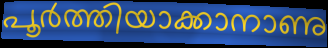
പൂർത്തിയാക്കാനാണു